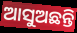
ଆସୁଅଛନ୍ତି